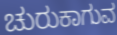
ಚುರುಕಾಗುವ